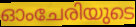
ഓംചേരിയുടെ